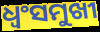
ଧ୍ୱଂସମୁଖୀ